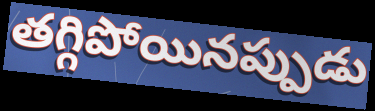
తగ్గిపోయినప్పుడు